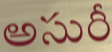
అసురీ